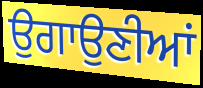
ਉਗਾਉਣੀਆਂ